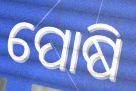
ପୋଷି